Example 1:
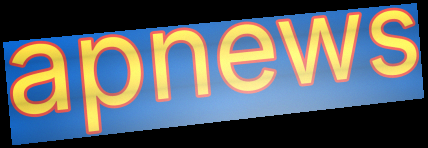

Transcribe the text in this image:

apnews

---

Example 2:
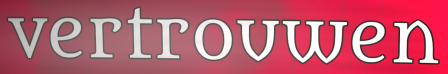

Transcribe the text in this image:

vertrouwen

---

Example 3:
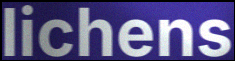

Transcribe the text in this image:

lichens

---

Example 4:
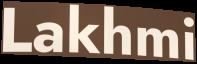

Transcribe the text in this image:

Lakhmi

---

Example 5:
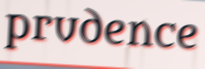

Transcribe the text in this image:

prudence